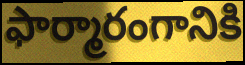
ఫార్మారంగానికి